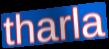
tharla